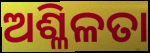
ଅଶ୍ଳିଳତା